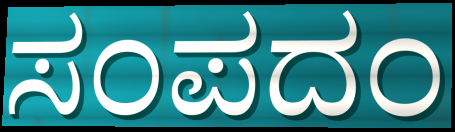
ಸಂಪದಂ